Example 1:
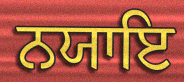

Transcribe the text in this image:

ਨਯਾਇ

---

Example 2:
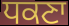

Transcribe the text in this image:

ਧਕਣਾ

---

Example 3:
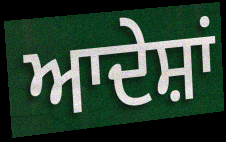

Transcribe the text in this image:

ਆਦੇਸ਼ਾਂ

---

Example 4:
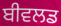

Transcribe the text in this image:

ਬੀਵਲਡ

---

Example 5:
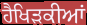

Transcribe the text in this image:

ਹੈਖਿੜਕੀਆਂ